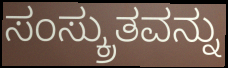
ಸಂಸ್ಕ್ರುತವನ್ನು